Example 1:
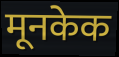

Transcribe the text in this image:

मूनकेक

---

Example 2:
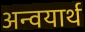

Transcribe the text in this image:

अन्वयार्थ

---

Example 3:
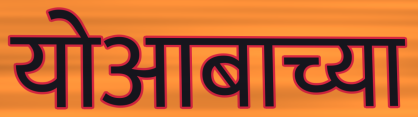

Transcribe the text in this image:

योआबाच्या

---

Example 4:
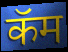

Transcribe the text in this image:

कॅम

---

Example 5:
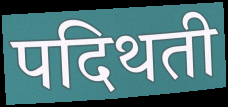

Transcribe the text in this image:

पदिथती